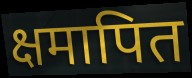
क्षमापित